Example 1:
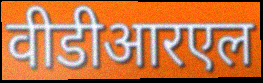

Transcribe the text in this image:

वीडीआरएल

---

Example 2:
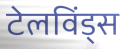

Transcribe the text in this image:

टेलविंड्स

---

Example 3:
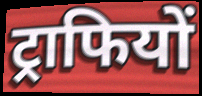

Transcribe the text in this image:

ट्राफियों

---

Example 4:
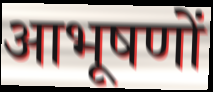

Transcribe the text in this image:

आभूषणों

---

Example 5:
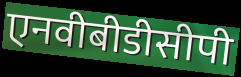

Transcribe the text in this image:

एनवीबीडीसीपी